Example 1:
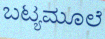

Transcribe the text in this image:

ಬಟ್ಯಮೂಲೆ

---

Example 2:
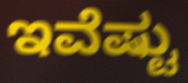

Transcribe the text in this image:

ಇವೆಷ್ಟು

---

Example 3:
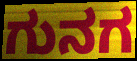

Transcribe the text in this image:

ಗುನಗ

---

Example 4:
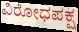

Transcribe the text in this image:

ವಿರೋಧಪಕ್ಷ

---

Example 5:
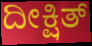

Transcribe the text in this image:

ದೀಕ್ಷಿತ್